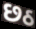
છઠ